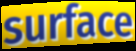
surface